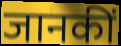
जानकीं